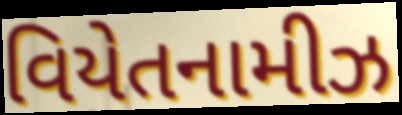
વિયેતનામીઝ